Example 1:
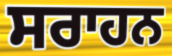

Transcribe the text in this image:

ਸਰਾਹਨ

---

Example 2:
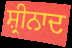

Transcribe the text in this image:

ਸ਼੍ਰੀਨਾਦ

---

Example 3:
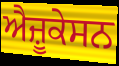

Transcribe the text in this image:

ਐਜ਼ੂਕੇਸਨ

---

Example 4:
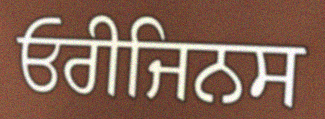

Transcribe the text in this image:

ਓਰੀਜਿਨਸ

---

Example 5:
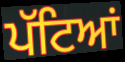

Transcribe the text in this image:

ਪੱਟਿਆਂ